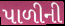
પાળીની